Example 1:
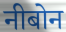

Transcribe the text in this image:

नीबोन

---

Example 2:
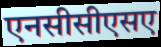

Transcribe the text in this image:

एनसीसीएसए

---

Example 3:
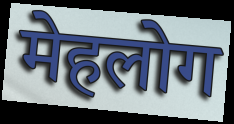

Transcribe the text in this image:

मेहलोग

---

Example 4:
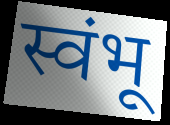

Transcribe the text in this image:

स्वंभू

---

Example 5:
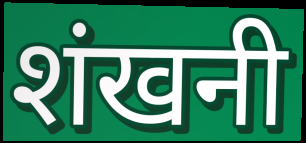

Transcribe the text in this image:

शंखनी